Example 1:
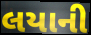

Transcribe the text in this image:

લયાની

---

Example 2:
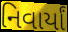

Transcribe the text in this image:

નિવાર્યાં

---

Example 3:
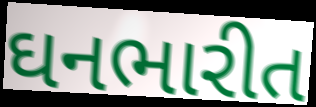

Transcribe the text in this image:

ઘનભારીત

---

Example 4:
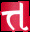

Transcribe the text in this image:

ત્ત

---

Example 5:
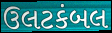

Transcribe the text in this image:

ઉલટકંબલ